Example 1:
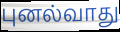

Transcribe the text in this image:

புனல்வாது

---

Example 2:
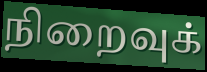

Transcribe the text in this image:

நிறைவுக்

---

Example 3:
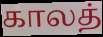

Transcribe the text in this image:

காலத்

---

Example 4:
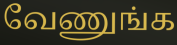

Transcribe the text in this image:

வேணுங்க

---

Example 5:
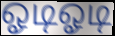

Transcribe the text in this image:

ஓடிஓடி